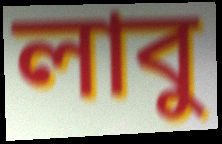
লাবু